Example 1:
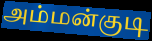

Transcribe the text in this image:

அம்மன்குடி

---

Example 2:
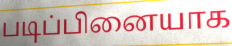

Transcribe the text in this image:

படிப்பினையாக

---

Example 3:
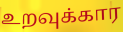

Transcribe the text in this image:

உறவுக்கார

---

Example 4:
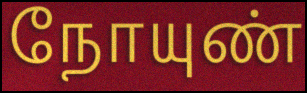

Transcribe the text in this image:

நோயுண்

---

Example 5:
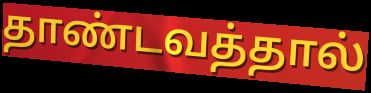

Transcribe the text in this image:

தாண்டவத்தால்